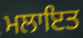
ਮਲਾਇਤ